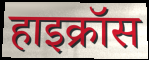
हाइक्रॉस